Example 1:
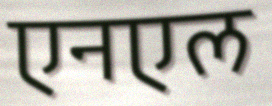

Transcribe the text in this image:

एनएल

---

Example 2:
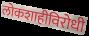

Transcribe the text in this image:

लोकशाहीविरोधी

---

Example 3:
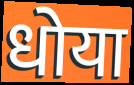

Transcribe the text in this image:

धोया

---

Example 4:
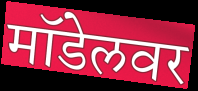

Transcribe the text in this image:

मॉडेलवर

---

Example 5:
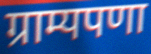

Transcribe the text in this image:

ग्राम्यपणा